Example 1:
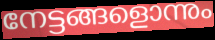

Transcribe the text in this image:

നേട്ടങ്ങളൊന്നും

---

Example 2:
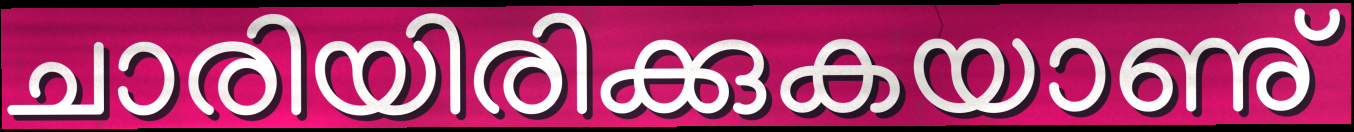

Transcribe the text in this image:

ചാരിയിരിക്കുകയാണു്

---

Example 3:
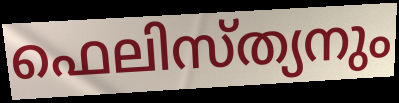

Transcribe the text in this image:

ഫെലിസ്ത്യനും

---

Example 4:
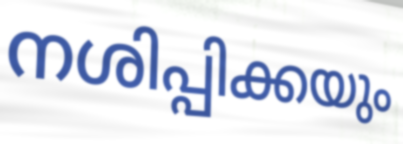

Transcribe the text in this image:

നശിപ്പിക്കയും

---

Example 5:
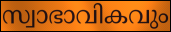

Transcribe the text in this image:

സ്വാഭാവികവും